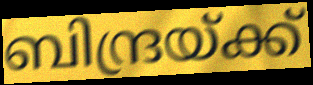
ബിന്ദ്രയ്ക്ക്